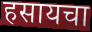
हसायचा